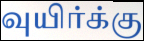
வுயிர்க்கு